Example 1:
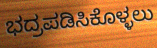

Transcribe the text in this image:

ಭದ್ರಪಡಿಸಿಕೊಳ್ಳಲು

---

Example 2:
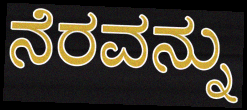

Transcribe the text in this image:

ನೆರವನ್ನು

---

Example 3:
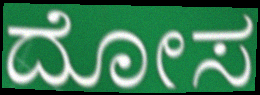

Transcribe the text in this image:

ದೋಸ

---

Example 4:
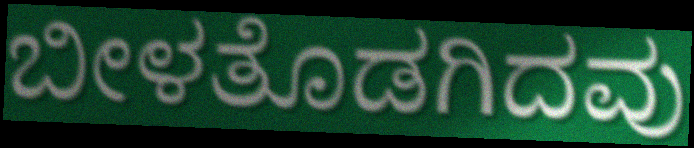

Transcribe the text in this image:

ಬೀಳತೊಡಗಿದವು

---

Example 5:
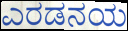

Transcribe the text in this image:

ಎರಡನಯ